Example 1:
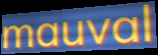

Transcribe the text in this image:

mauval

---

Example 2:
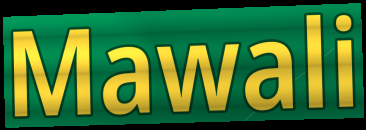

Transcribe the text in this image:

Mawali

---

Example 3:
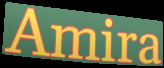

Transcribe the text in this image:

Amira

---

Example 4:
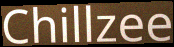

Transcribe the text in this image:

Chillzee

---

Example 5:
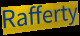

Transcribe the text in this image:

Rafferty